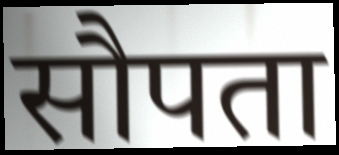
सौपता